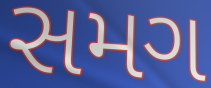
સમગ